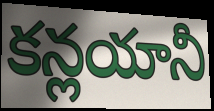
కన్లయానీ